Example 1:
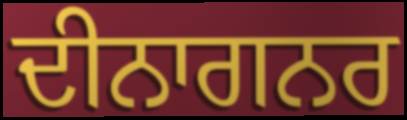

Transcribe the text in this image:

ਦੀਨਾਗਨਰ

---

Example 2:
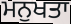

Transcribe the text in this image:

ਮਨੁਖਤਾ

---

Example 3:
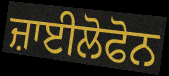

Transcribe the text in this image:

ਜ਼ਾਈਲੋਫੋਨ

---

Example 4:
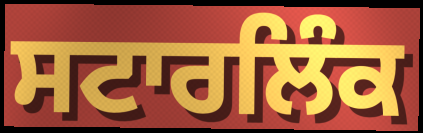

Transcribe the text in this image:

ਸਟਾਰਲਿੰਕ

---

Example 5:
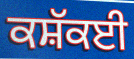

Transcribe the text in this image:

ਕਸ਼ੱਕਈ